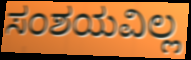
ಸಂಶಯವಿಲ್ಲ